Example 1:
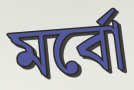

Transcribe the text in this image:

মর্বো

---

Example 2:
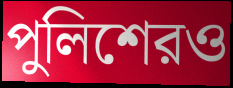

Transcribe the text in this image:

পুলিশেরও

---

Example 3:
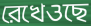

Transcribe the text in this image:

রেখেওছে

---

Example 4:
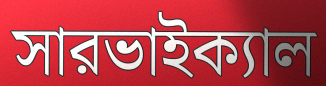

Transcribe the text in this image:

সারভাইক্যাল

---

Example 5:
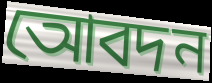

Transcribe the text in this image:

আেবদন